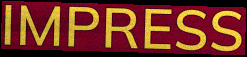
IMPRESS